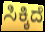
ಸಿಕ್ಕಿದೆ